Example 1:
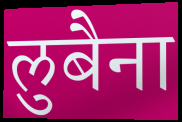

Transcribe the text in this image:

लुबैना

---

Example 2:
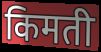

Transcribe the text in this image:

किमती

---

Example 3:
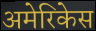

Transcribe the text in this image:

अमेरिकेस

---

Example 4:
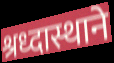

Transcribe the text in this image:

श्रध्दास्थाने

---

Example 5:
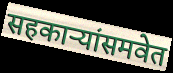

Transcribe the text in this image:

सहकाऱ्यांसमवेत